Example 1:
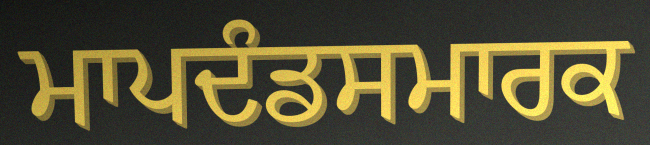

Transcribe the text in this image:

ਮਾਪਦੰਡਸਮਾਰਕ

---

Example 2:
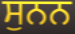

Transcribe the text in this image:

ਸੁਨਨ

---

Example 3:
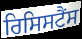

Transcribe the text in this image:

ਰਿਸਿਸਟੈਂਸ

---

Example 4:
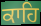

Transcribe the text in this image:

ਕਾਹਿ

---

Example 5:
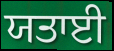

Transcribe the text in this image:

ਯਤਾਈ